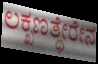
ಲಕ್ಖಣತ್ಥೇರೇನ